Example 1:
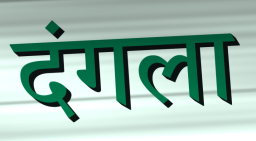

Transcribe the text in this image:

दंगला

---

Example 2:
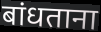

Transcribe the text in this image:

बांधताना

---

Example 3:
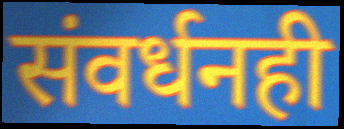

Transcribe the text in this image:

संवर्धनही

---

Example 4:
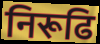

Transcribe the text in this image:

निरूढि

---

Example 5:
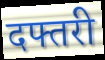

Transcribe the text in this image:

दफ्तरी